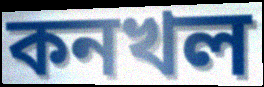
কনখল